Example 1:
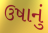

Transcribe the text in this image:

ઉષાનું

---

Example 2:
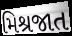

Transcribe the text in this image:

મિશ્રજાત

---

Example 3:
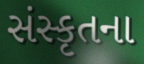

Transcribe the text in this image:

સંસ્‍કૃતના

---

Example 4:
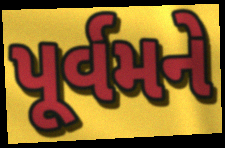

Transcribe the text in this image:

પૂર્વમને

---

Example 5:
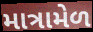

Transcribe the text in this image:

માત્રામેળ